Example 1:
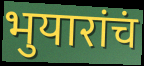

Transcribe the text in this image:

भुयारांचं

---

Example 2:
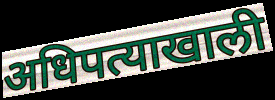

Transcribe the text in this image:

अधिपत्याखाली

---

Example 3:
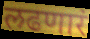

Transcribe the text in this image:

लढणारं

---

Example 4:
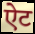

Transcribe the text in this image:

ऐट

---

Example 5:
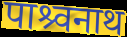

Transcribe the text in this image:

पाश्र्वनाथ